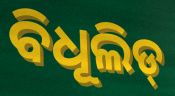
ବିଧୂଲିଡ୍